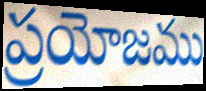
ప్రయోజము